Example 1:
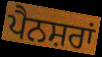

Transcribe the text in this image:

ਪੈਨਸ਼ਰਾਂ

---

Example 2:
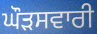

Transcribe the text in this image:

ਘੌੜਸਵਾਰੀ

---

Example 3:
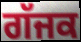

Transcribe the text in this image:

ਗੱਜਕ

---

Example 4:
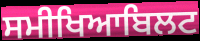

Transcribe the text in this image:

ਸਮੀਖਿਆਬਿਲਟ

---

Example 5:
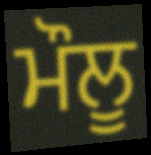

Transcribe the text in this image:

ਮੌਲੂ